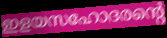
ഇളയസഹോദരന്റെ